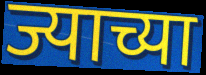
ज्याच्या